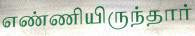
எண்ணியிருந்தார்